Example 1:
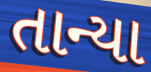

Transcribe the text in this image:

તાન્યા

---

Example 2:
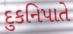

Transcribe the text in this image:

દુકનિપાતે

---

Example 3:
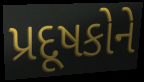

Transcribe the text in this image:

પ્રદૂષકોને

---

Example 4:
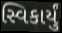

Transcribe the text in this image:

સ્વિકાર્યું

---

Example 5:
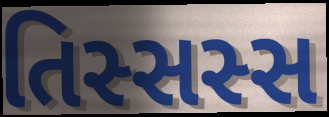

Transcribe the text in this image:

તિસ્સસ્સ